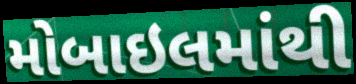
મોબાઇલમાંથી